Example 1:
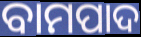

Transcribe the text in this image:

ବାମପାଦ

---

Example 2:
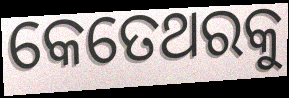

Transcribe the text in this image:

କେତେଥରକୁ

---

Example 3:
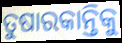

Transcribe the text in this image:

ତୁଷାରକାନ୍ତିକୁ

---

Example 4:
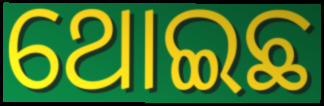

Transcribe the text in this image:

ଥୋଇଛ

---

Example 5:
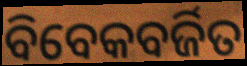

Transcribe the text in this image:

ବିବେକବର୍ଜିତ